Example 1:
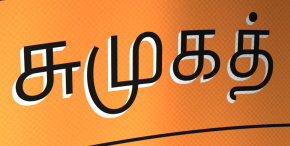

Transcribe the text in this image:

சுமுகத்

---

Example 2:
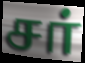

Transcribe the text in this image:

சர்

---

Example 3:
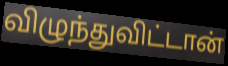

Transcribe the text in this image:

விழுந்துவிட்டான்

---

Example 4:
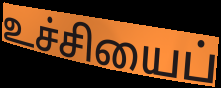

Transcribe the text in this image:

உச்சியைப்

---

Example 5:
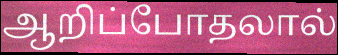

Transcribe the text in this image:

ஆறிப்போதலால்